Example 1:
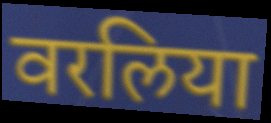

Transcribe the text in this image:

वरलिया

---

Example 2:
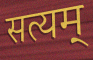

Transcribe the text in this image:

सत्यम्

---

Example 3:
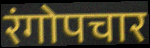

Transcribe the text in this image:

रंगोपचार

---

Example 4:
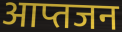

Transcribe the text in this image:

आप्तजन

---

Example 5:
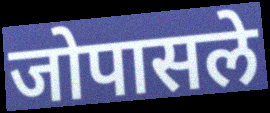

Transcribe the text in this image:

जोपासले